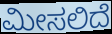
ಮೀಸಲಿದೆ